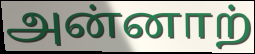
அன்னாற்